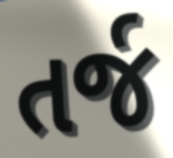
તર્જ